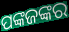
ପଙ୍କଜଙ୍କର